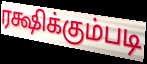
ரக்ஷிக்கும்படி